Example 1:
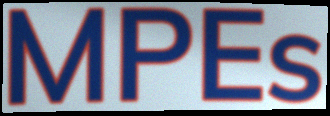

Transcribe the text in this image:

MPEs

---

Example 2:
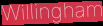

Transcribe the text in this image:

Willingham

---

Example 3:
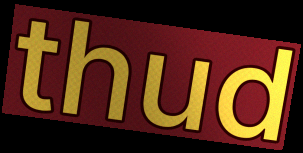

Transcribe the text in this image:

thud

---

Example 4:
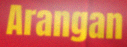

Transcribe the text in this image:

Arangan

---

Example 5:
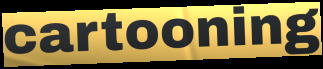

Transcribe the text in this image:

cartooning